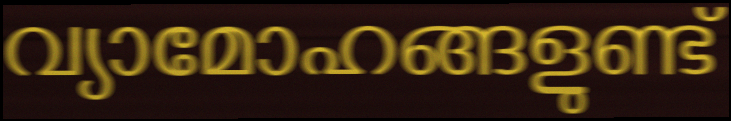
വ്യാമോഹങ്ങളുണ്ട്